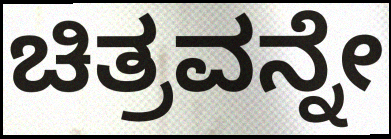
ಚಿತ್ರವನ್ನೇ